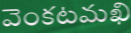
వెంకటమఖి